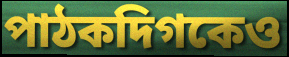
পাঠকদিগকেও